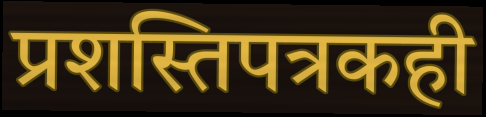
प्रशस्तिपत्रकही